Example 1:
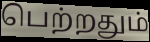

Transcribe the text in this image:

பெற்றதும்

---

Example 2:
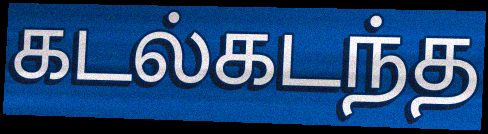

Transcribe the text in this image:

கடல்கடந்த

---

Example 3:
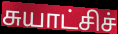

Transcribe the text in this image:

சுயாட்சிச்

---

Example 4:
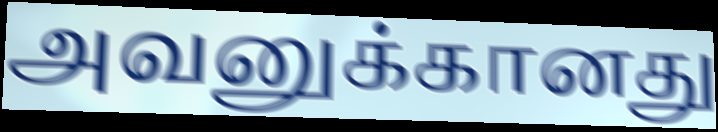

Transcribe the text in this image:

அவனுக்கானது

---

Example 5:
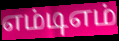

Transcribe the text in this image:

எம்டிஎம்